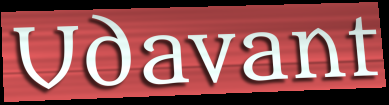
Udavant